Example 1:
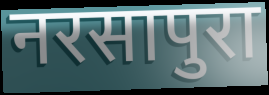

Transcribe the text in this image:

नरसापुरा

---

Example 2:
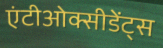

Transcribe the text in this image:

एंटीओक्सीडेंट्स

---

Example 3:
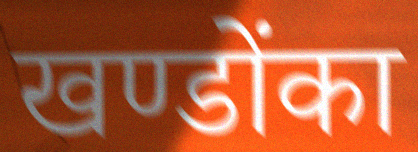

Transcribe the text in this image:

खण्डोंका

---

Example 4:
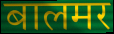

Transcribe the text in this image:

बालमर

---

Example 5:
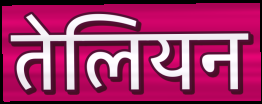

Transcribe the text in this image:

तेलियन